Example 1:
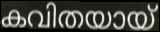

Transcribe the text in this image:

കവിതയായ്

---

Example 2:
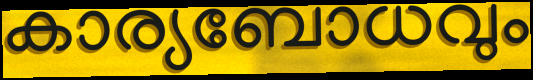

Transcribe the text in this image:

കാര്യബോധവും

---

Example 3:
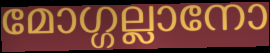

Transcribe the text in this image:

മോഗ്ഗല്ലാനോ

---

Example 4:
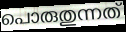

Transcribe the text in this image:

പൊരുതുന്നത്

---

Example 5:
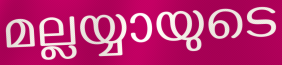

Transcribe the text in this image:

മല്ലയ്യായുടെ